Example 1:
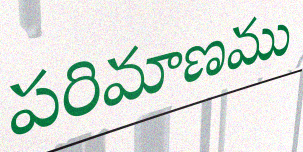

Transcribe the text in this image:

పరిమాణము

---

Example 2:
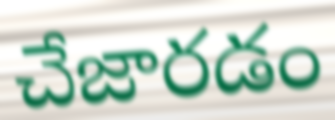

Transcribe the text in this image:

చేజారడం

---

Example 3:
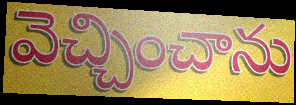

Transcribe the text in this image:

వెచ్చించాను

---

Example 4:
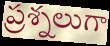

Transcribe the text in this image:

ప్రశ్నలుగా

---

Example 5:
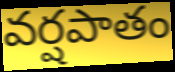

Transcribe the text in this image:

వర్షపాతం